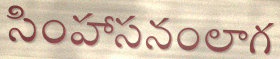
సింహాసనంలాగ